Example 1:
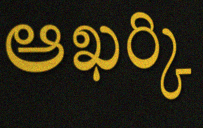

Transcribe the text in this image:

ఆఖర్కి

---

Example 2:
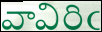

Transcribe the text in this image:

వావిరిఁ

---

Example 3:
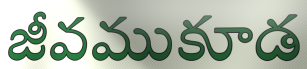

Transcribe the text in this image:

జీవముకూడ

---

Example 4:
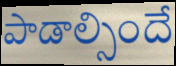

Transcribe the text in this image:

పాడాల్సిందే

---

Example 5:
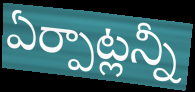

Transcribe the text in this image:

ఏర్పాట్లన్నీ